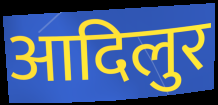
आदिलुर